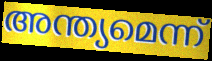
അന്ത്യമെന്ന്